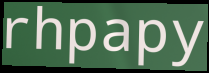
rhpapy